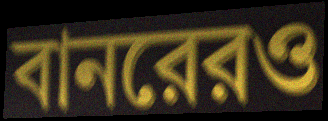
বানরেরও